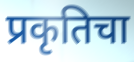
प्रकृतिचा